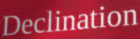
Declination